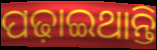
ପଢ଼ାଇଥାନ୍ତି